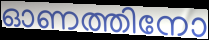
ഓണത്തിനോ